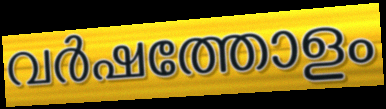
വർഷത്തോളം